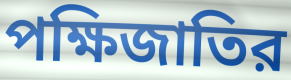
পক্ষিজাতির